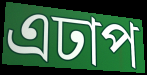
এঢাপ